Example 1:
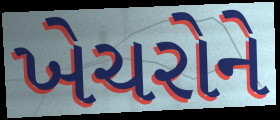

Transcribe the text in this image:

ખેચરોને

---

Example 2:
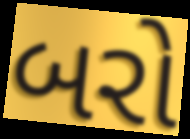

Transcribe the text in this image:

બરો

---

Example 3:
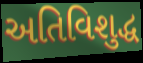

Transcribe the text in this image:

અતિવિશુદ્ધ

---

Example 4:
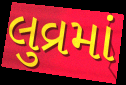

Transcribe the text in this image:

લુવ્રમાં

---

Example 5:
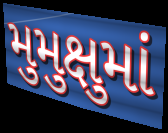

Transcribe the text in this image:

મુમુક્ષુમાં